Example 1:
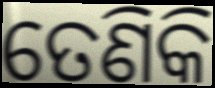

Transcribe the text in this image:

ତେଣିକି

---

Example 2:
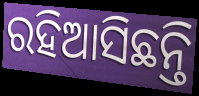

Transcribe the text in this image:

ରହିଆସିଛନ୍ତି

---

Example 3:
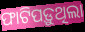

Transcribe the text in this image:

ଫାଟିପଡ଼ୁଥିଲା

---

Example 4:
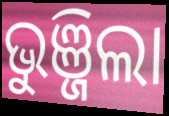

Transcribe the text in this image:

ଭୁଞ୍ଜିଲା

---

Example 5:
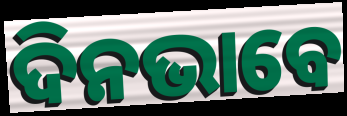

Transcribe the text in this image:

ଦିନଭାବେ